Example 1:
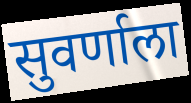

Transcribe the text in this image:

सुवर्णाला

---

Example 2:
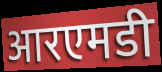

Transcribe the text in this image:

आरएमडी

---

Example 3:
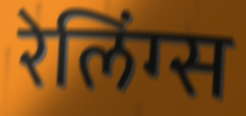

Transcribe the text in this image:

रेलिंग्स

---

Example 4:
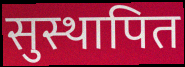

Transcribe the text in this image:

सुस्थापित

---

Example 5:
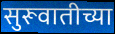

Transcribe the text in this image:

सुरूवातीच्या